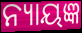
ନ୍ୟାୟଜ୍ଞ